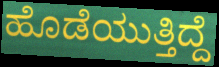
ಹೊಡೆಯುತ್ತಿದ್ದೆ